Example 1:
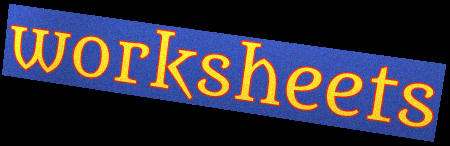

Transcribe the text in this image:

worksheets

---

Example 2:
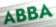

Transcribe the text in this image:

ABBA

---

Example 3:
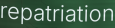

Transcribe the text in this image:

repatriation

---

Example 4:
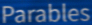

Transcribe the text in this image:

Parables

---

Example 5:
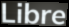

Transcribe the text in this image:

Libre